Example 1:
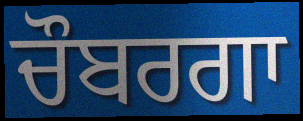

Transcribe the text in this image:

ਚੌਬਰਗਾ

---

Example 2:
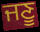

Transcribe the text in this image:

ਜਣੂ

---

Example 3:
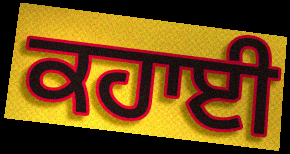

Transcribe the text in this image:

ਕਹਾਈ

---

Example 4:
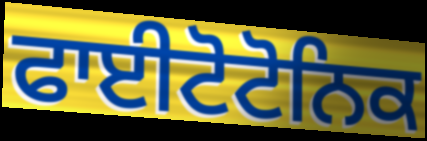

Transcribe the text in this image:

ਫਾਈਟੋਟੋਨਿਕ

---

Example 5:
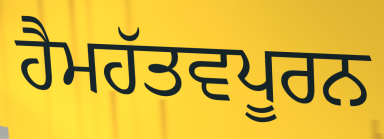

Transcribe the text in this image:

ਹੈਮਹੱਤਵਪੂਰਨ